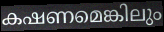
കഷണമെങ്കിലും